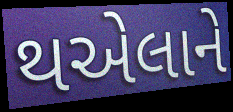
થએલાને